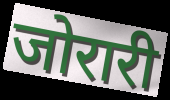
जोरारी